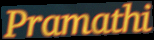
Pramathi